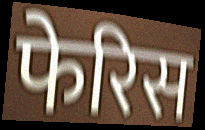
फेरिस